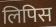
लिपिस